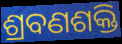
ଶ୍ରବଣଶକ୍ତି